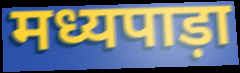
मध्यपाड़ा